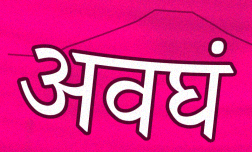
अवघं